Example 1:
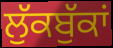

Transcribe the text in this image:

ਲੁੱਕਬੁੱਕਾਂ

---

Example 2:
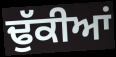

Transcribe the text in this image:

ਢੁੱਕੀਆਂ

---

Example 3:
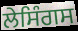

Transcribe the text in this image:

ਲੇਸਿੰਗਸ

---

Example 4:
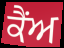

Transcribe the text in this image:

ਕੈਂਅ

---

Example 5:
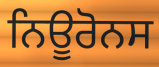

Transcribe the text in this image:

ਨਿਊਰੋਨਸ